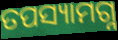
ତପସ୍ୟାମଗ୍ନ